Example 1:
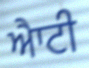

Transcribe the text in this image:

ਐਾਟੀ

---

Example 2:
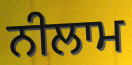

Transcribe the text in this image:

ਨੀਲਾਮ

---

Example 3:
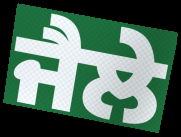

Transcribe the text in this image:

ਜੈਲੇ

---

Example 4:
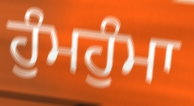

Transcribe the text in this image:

ਹੁੰਮਹੁੰਮਾ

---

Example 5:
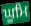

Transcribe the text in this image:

ਘੂਮਿ